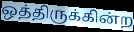
ஒத்திருக்கின்ற